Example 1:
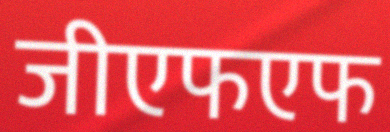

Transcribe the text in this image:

जीएफएफ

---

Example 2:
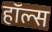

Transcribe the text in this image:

हॉल्स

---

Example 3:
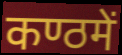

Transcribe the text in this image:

कण्ठमें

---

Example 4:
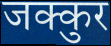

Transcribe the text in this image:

जक्कुर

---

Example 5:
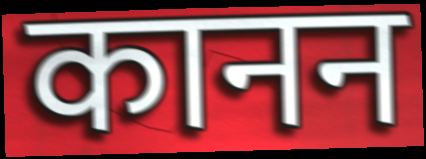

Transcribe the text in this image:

कानन